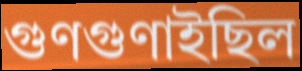
গুণগুণাইছিল